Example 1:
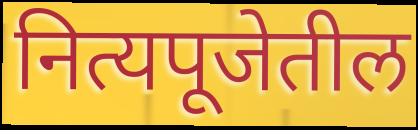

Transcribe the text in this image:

नित्यपूजेतील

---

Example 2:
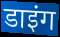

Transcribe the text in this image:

डाइंग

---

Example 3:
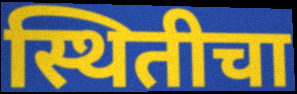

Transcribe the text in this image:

स्थितीचा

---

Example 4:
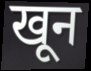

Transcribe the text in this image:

खून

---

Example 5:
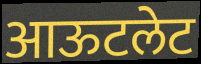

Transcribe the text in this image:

आऊटलेट